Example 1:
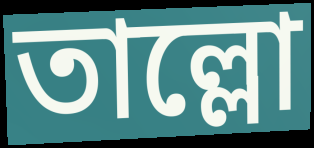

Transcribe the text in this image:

তাল্লো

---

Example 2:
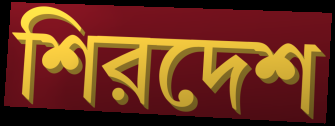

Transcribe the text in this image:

শিরদেশ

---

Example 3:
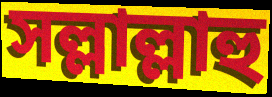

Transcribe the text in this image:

সল্লাল্লাহু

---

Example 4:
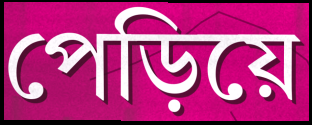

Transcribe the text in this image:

পেড়িয়ে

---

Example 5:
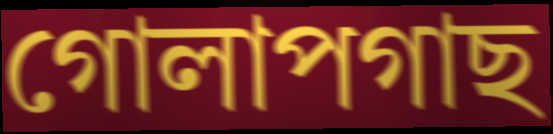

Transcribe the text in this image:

গোলাপগাছ